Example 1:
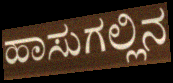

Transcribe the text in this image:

ಹಾಸುಗಲ್ಲಿನ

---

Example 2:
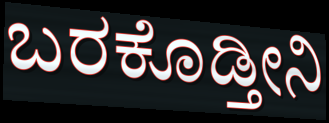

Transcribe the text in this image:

ಬರಕೊಡ್ತೀನಿ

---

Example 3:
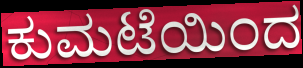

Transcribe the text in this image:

ಕುಮಟೆಯಿಂದ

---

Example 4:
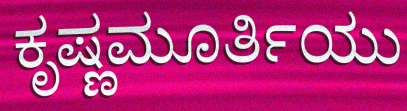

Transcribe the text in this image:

ಕೃಷ್ಣಮೂರ್ತಿಯು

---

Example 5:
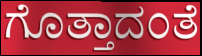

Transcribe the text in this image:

ಗೊತ್ತಾದಂತೆ